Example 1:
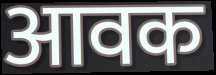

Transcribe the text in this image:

आवक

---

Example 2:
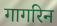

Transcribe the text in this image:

गागरिन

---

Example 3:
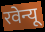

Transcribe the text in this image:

रवेन्यू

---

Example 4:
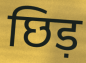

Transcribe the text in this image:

छिड़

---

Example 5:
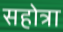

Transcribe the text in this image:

सहोत्रा